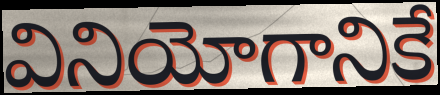
వినియోగానికే